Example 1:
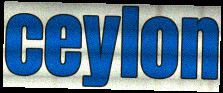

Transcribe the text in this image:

ceylon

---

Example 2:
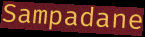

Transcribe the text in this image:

Sampadane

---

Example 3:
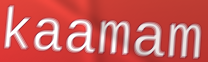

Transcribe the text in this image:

kaamam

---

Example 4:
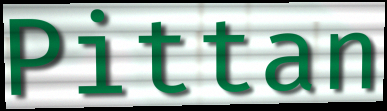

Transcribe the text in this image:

Pittan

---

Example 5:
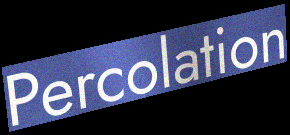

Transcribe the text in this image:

Percolation